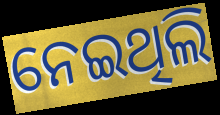
ନେଇଥିଲି